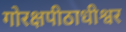
गोरक्षपीठाधीश्वर